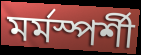
মৰ্মস্পৰ্শী